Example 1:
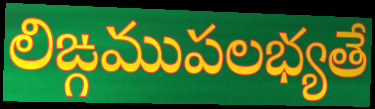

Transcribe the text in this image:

లిఙ్గముపలభ్యతే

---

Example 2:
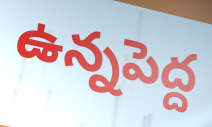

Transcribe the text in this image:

ఉన్నపెద్ద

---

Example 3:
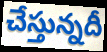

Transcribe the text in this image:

చేస్తున్నదీ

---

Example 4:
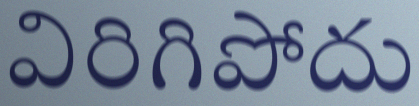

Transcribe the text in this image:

విరిగిపోదు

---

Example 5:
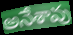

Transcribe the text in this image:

అనేశావు